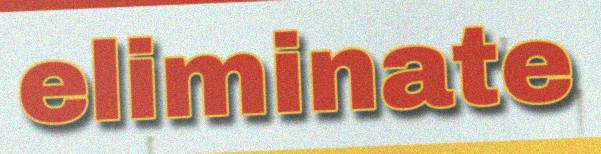
eliminate